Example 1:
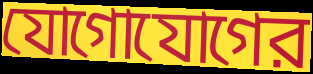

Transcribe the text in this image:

যোগোযোগের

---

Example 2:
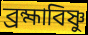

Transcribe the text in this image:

ব্রহ্মাবিষ্ণু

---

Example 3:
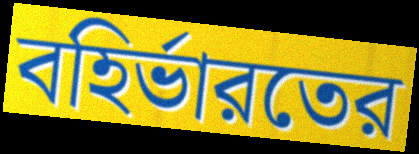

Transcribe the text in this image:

বহির্ভারতের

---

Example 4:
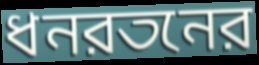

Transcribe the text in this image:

ধনরতনের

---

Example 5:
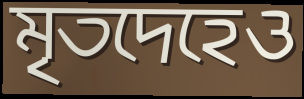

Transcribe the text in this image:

মৃতদেহেও